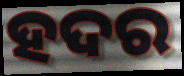
ହଦର